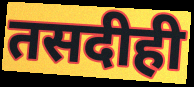
तसदीही